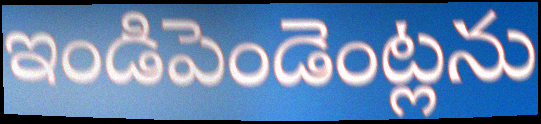
ఇండిపెండెంట్లను